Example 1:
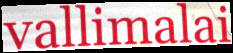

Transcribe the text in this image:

vallimalai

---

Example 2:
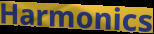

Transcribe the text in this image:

Harmonics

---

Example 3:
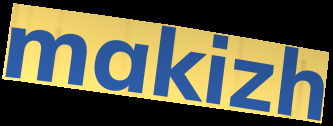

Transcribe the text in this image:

makizh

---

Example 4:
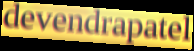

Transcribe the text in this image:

devendrapatel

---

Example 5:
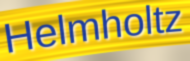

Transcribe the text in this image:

Helmholtz